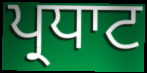
ਪ੍ਰਧਾਟ